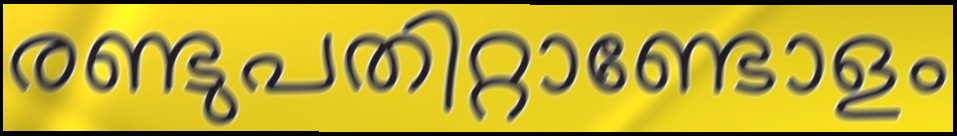
രണ്ടുപതിറ്റാണ്ടോളം